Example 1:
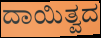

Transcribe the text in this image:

ದಾಯಿತ್ವದ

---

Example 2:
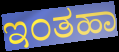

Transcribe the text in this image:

ಇಂತಹಾ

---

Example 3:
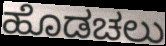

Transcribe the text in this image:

ಹೊಡಚಲು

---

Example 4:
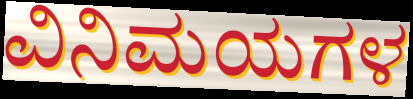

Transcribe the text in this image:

ವಿನಿಮಯಗಳ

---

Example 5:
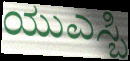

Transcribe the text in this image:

ಯುಎಸ್ಬಿ